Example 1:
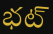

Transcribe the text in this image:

భట్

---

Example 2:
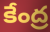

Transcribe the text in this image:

కేంద్ర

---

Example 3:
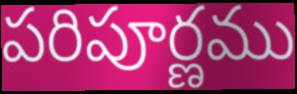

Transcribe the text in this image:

పరిపూర్ణము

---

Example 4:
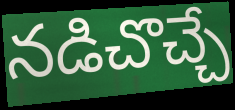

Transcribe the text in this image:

నడిచొచ్చే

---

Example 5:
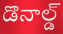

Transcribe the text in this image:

డొనాల్డ్